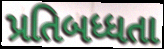
પ્રતિબધ્ધતા